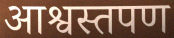
आश्वस्तपण